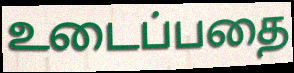
உடைப்பதை